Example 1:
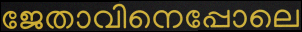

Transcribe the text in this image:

ജേതാവിനെപ്പോലെ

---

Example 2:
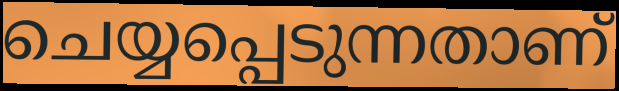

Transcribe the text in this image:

ചെയ്യപ്പെടുന്നതാണ്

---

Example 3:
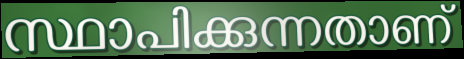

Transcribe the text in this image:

സ്ഥാപിക്കുന്നതാണ്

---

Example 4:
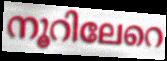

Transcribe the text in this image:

നൂറിലേറെ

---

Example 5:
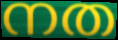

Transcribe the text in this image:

നത